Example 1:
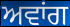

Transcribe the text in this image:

ਅਵਾਂਗ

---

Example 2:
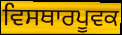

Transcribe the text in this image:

ਵਿਸਥਾਰਪੂਵਕ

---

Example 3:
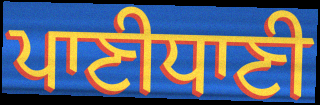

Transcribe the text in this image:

ਪਾਣੀਧਾਣੀ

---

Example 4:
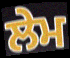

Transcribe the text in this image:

ਲੇਮ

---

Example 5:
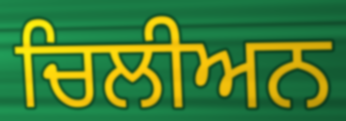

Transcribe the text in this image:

ਚਿਲੀਅਨ